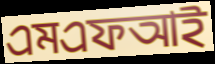
এমএফআই